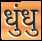
धुंधु